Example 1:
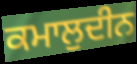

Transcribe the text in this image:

ਕਮਾਲੁਦੀਨ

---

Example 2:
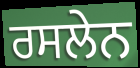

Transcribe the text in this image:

ਰਸਲੇਨ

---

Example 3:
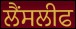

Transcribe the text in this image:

ਲੈਂਸਲੀਫ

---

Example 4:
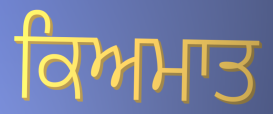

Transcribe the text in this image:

ਕਿਅਮਾਤ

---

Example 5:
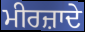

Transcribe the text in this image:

ਮੀਰਜ਼ਾਦੇ